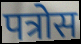
पत्रोस